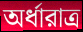
অর্ধারাত্র